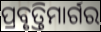
ପ୍ରବୃତ୍ତିମାର୍ଗର